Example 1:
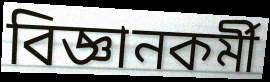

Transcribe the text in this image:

বিজ্ঞানকর্মী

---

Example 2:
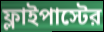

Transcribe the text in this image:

ফ্লাইপাস্টের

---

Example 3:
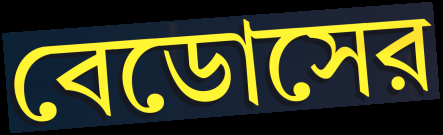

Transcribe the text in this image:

বেডোসের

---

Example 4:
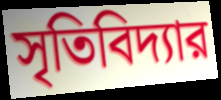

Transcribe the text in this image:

সৃতিবিদ্যার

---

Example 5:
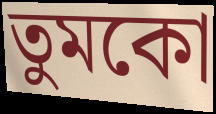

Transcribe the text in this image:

তুমকো